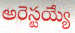
అరెస్టయ్యే